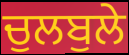
ਚੁਲਬੁਲੇ